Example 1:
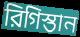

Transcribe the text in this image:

রিগিস্তান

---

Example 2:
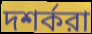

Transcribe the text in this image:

দশর্করা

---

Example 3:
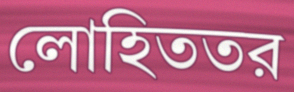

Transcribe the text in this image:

লোহিততর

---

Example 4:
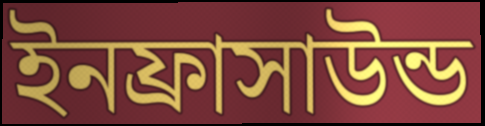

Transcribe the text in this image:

ইনফ্রাসাউন্ড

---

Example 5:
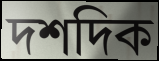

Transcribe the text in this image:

দশদিক